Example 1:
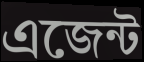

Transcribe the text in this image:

এজেন্ট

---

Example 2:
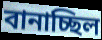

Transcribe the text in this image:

বানাচ্ছিল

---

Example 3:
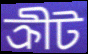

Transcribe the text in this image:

ক্রীট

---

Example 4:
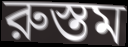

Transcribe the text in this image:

রুস্তম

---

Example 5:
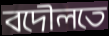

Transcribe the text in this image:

বদৌলতে